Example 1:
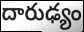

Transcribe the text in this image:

దారుఢ్యం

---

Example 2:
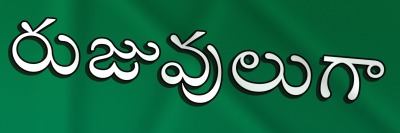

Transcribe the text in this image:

రుజువులుగా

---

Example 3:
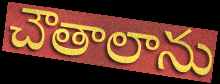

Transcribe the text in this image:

చౌతాలాను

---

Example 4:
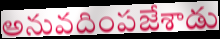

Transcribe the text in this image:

అనువదింపజేశాడు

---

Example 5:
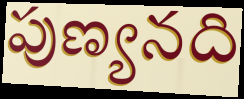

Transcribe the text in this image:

పుణ్యనది